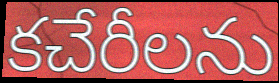
కచేరీలను